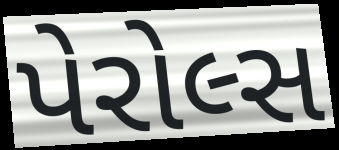
પેરોલ્સ